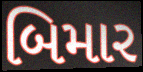
બિમાર